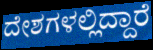
ದೇಶಗಳಲ್ಲಿದ್ದಾರೆ